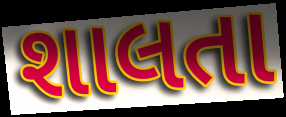
શાલતા